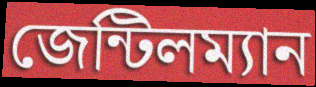
জেন্টিলম্যান